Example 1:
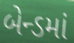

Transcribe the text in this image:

બેન્ડમાં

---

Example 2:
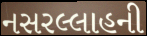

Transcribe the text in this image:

નસરલ્લાહની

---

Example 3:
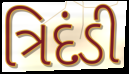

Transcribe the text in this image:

ત્રિદંડી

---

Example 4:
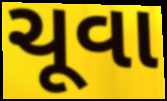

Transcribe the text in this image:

ચૂવા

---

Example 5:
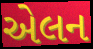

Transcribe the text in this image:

એલન